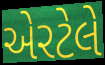
એરટેલે